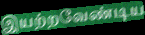
இயற்றவேண்டிய